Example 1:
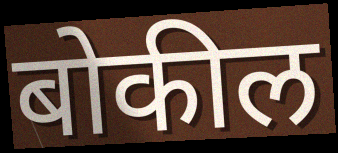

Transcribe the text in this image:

बोकील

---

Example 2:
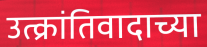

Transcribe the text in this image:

उत्क्रांतिवादाच्या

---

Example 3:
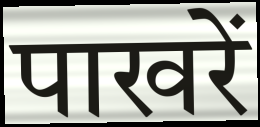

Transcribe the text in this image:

पाखरें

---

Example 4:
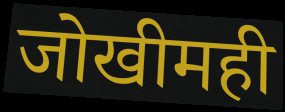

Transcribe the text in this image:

जोखीमही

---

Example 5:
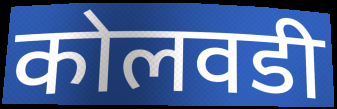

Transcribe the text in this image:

कोलवडी